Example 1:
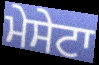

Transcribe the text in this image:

ਮੇਸੇਟਾ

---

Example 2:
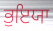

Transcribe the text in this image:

ਭੁਇਯਾ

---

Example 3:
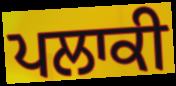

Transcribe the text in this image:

ਪਲਾਕੀ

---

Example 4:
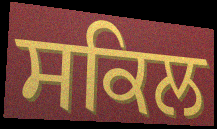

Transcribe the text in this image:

ਸਕਿਲ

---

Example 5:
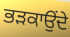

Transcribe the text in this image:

ਭੜਕਾਉਂਦੇ